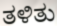
ತಳಿತು